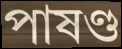
পাষণ্ড